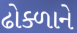
ઢોક્ળાને